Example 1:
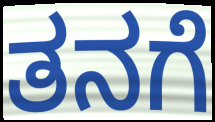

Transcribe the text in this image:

ತನಗೆ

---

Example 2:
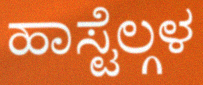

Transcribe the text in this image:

ಹಾಸ್ಟೆಲ್ಗಳ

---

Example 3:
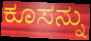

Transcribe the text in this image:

ಕೂಸನ್ನು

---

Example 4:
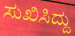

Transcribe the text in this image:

ಸುಖಿಸಿದ್ದು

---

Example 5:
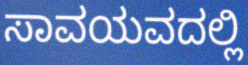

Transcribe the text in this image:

ಸಾವಯವದಲ್ಲಿ